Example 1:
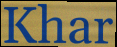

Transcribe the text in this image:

Khar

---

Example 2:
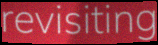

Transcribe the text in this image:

revisiting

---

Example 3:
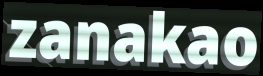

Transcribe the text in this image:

zanakao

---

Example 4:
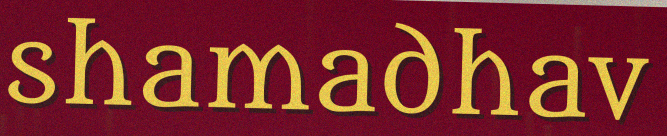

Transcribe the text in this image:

shamadhav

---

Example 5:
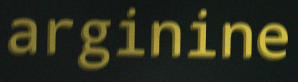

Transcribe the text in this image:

arginine